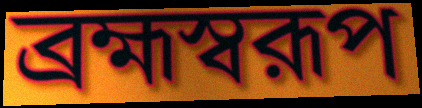
ব্রহ্মস্বরূপ